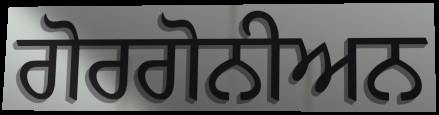
ਗੋਰਗੋਨੀਅਨ